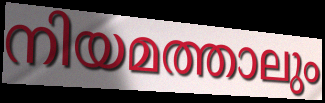
നിയമത്താലും